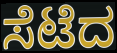
ಸೆಟೆದ